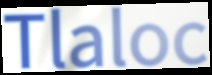
Tlaloc